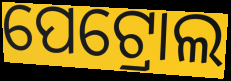
ପେଟ୍ରୋଲ